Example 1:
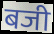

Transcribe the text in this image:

बजी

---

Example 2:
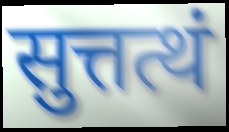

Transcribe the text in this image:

सुत्तत्थं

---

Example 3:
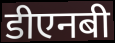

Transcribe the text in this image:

डीएनबी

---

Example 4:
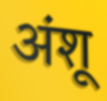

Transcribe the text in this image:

अंशू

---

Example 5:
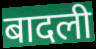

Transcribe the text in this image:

बादली